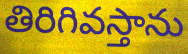
తిరిగివస్తాను